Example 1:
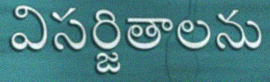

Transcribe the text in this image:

విసర్జితాలను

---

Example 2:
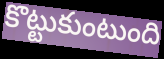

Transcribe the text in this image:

కొట్టుకుంటుంది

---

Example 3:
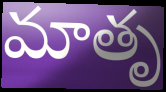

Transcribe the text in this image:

మాతృ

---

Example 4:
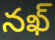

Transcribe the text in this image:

నఖ్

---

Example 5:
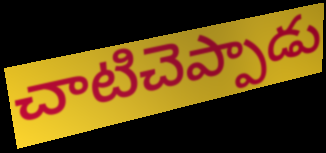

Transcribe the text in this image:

చాటిచెప్పాడు